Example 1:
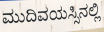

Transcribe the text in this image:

ಮುದಿವಯಸ್ಸಿನಲ್ಲಿ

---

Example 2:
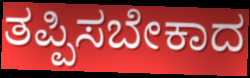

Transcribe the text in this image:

ತಪ್ಪಿಸಬೇಕಾದ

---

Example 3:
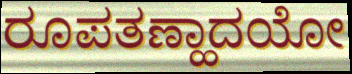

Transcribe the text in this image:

ರೂಪತಣ್ಹಾದಯೋ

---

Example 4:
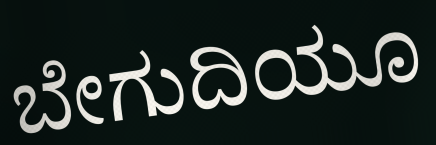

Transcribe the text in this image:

ಬೇಗುದಿಯೂ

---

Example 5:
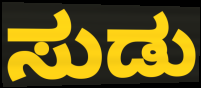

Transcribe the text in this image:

ಸುಡು